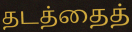
தடத்தைத்